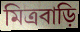
মিত্রবাড়ি